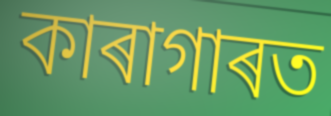
কাৰাগাৰত